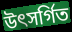
উৎসৰ্গিত